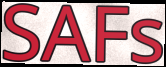
SAFs